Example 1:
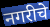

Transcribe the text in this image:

नगरीचे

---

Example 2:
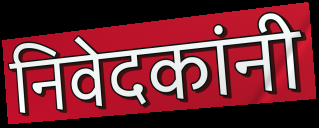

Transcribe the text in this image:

निवेदकांनी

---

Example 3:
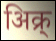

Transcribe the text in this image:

अिक्र्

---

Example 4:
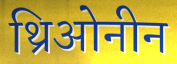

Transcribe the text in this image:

थ्रिओनीन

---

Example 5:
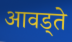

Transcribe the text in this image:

आवड्ते